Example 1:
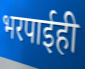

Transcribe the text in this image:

भरपाईही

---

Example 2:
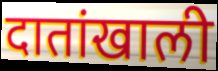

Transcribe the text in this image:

दातांखाली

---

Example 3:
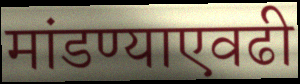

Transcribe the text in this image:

मांडण्याएवढी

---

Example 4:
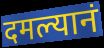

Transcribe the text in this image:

दमल्यानं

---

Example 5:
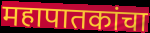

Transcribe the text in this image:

महापातकांचा